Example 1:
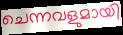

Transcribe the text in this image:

ചെന്നവളുമായി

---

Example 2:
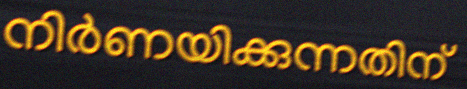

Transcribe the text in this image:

നിർണയിക്കുന്നതിന്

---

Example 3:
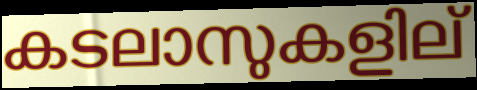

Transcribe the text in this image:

കടലാസുകളില്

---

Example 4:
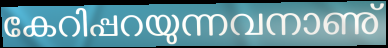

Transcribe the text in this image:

കേറിപ്പറയുന്നവനാണു്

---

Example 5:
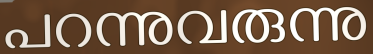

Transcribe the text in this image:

പറന്നുവരുന്നു